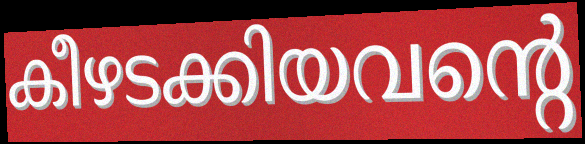
കീഴടക്കിയവന്റെ